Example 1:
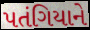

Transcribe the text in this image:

પતંગિયાને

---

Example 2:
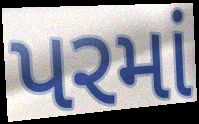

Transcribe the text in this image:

પરમાં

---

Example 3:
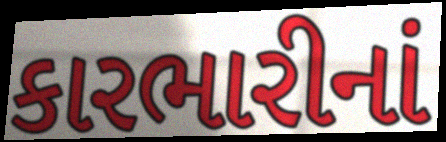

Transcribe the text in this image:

કારભારીનાં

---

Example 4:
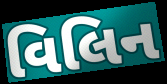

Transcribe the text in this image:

વિલિન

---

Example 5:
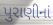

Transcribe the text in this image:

પુરાણીનાં